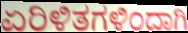
ಏರಿಳಿತಗಳಿಂದಾಗಿ